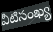
వీటిసంఖ్య